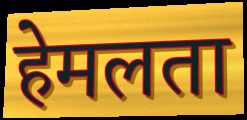
हेमलता